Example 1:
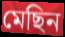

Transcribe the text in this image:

মেছিন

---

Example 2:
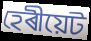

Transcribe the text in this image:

হেৰীয়েট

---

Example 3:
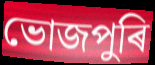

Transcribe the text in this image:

ভোজপুৰি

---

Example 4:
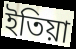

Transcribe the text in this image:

ইতিয়া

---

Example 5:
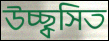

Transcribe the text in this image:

উচ্ছ্বসিত